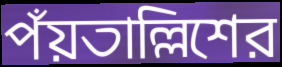
পঁয়তাল্লিশের